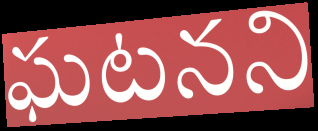
ఘటనని